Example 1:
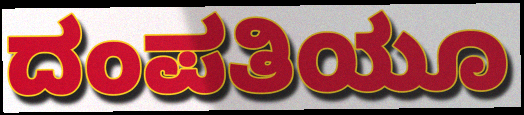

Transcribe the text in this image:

ದಂಪತಿಯೂ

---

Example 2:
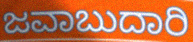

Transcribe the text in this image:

ಜವಾಬುದಾರಿ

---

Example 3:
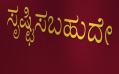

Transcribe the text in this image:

ಸೃಷ್ಟಿಸಬಹುದೇ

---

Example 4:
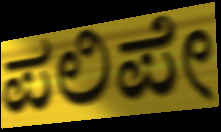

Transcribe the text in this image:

ಪಲಿಪೇ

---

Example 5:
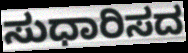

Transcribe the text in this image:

ಸುಧಾರಿಸದ